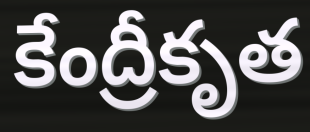
కేంద్రీకృత